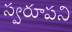
స్వరూపని